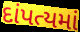
દાંપત્યમાં